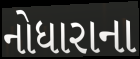
નોધારાના